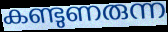
കണ്ടുണരുന്ന